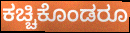
ಕಚ್ಚಿಕೊಂಡರೂ